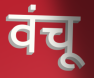
वंचू